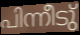
പിന്നീടു്